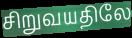
சிறுவயதிலே